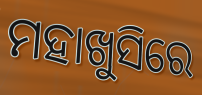
ମହାଖୁସିରେ